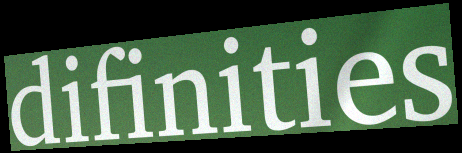
difinities